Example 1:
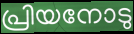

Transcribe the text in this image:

പ്രിയനോടു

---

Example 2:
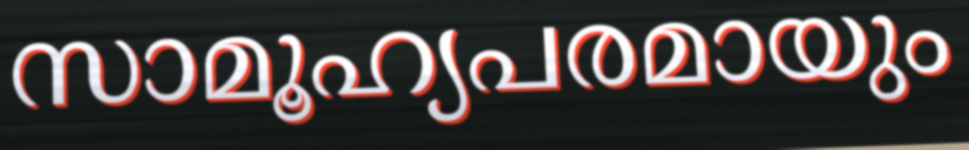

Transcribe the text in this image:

സാമൂഹ്യപരമായും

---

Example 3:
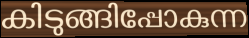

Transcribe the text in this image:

കിടുങ്ങിപ്പോകുന്ന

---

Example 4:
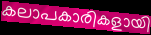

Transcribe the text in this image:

കലാപകാരികളായി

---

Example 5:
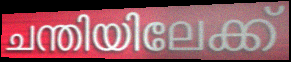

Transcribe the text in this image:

ചന്തിയിലേക്ക്